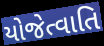
યોજેત્વાતિ